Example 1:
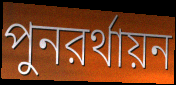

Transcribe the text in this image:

পুনরর্থায়ন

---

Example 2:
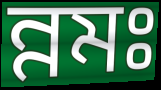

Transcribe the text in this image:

ন্নমঃ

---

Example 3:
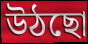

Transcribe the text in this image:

উঠছো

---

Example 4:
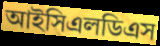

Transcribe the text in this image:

আইসিএলডিএস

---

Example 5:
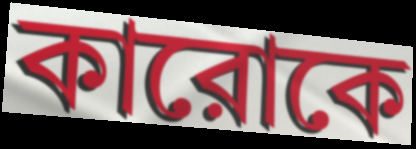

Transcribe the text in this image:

কারোকে